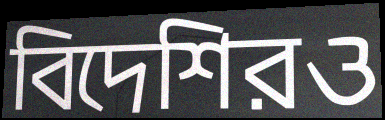
বিদেশিরও